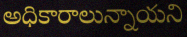
అధికారాలున్నాయని